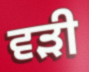
ਵੜੀ